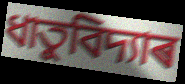
ধাতুবিদ্যাৰ